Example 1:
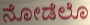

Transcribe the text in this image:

ನೋಡೆಲೊ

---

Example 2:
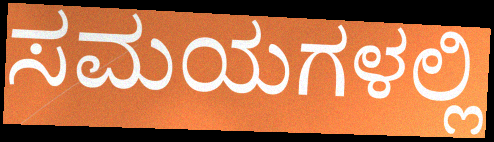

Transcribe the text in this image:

ಸಮಯಗಳಲ್ಲಿ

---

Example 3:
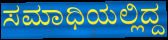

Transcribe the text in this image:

ಸಮಾಧಿಯಲ್ಲಿದ್ದ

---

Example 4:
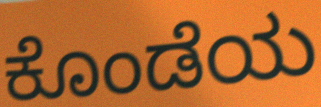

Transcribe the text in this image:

ಕೊಂಡೆಯ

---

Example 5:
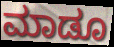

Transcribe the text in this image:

ಮಾಡೂ